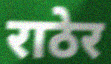
राठेर